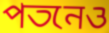
পতনেও